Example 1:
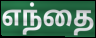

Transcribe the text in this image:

எந்தை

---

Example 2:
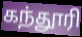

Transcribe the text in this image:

கந்தூரி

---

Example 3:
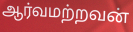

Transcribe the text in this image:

ஆர்வமற்றவன்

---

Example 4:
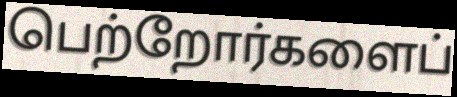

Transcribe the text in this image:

பெற்றோர்களைப்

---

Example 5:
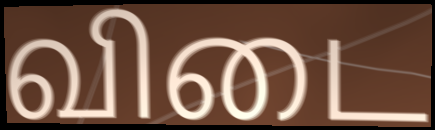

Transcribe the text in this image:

விடை